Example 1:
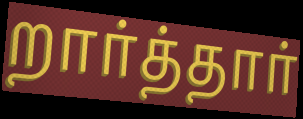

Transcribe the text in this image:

றார்த்தார்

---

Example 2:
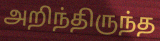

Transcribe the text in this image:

அறிந்திருந்த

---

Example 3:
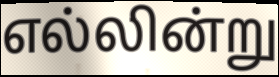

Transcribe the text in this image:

எல்லின்று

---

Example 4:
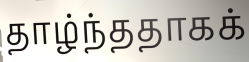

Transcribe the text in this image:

தாழ்ந்ததாகக்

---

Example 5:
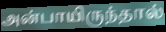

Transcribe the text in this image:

அன்பாயிருந்தால்